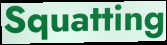
Squatting